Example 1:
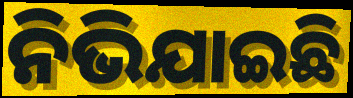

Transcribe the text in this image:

ନିଭିଯାଇଛି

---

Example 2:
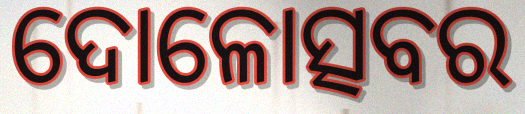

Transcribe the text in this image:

ଦୋଳୋତ୍ସବର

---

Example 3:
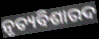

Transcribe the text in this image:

ନୃତ୍ୟବିଶାରଦ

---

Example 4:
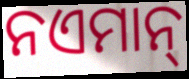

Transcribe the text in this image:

ନଏମାନ୍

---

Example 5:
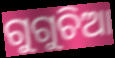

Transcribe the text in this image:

ଗୁଗୁଚିଆ